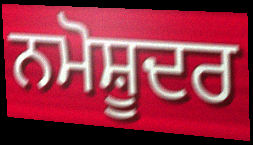
ਨਮੋਸ਼ੂਦਰ